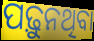
ପଢ଼ୁନଥିବା